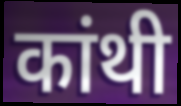
कांथी